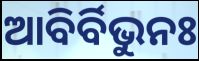
ଆବିର୍ବିଭୁନଃ